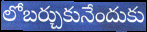
లోబర్చుకునేందుకు